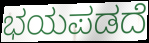
ಭಯಪಡದೆ